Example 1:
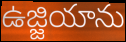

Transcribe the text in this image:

ఉజ్జియాను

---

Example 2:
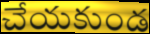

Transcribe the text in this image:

చేయకుండ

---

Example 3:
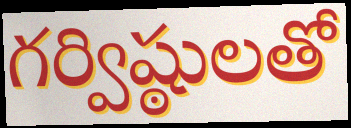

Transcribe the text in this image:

గర్విష్ఠులతో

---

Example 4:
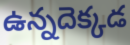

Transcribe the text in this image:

ఉన్నదెక్కడ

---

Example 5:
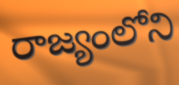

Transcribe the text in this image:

రాజ్యంలోని